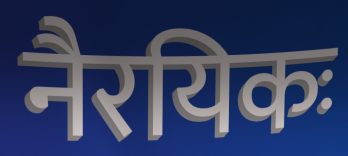
नैरयिकः